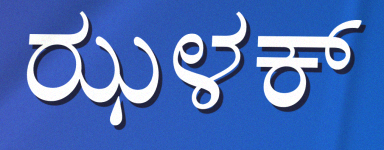
ಝಳಕ್